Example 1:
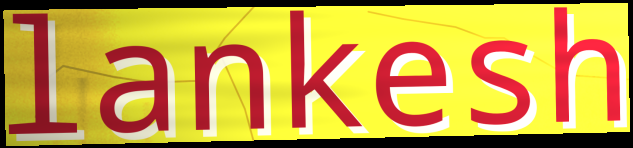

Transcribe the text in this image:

lankesh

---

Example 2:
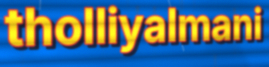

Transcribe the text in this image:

tholliyalmani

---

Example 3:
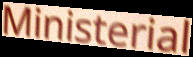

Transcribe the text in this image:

Ministerial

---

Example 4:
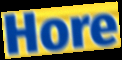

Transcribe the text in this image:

Hore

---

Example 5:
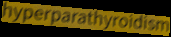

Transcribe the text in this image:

hyperparathyroidism